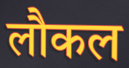
लौकल